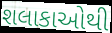
શલાકાઓથી